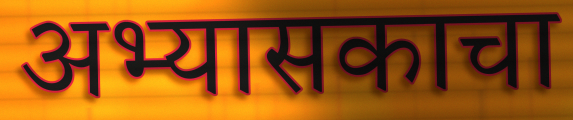
अभ्यासकाचा